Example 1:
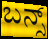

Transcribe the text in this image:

ಬನ್ಸ್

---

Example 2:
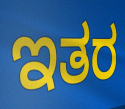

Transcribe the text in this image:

ಇತರ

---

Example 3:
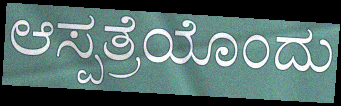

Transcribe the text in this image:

ಆಸ್ಪತ್ರೆಯೊಂದು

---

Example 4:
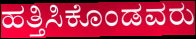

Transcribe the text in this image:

ಹತ್ತಿಸಿಕೊಂಡವರು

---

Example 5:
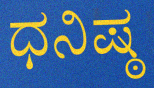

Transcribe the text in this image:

ಧನಿಷ್ಠ